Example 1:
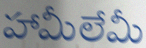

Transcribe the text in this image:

హామీలేమీ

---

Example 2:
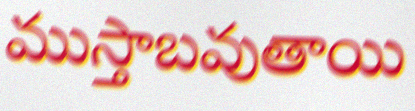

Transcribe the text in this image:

ముస్తాబవుతాయి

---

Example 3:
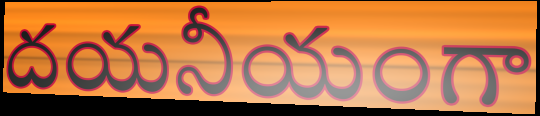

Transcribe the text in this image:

దయనీయంగా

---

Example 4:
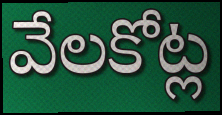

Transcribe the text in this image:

వేలకోట్ల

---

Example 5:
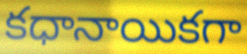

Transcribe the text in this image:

కధానాయికగా